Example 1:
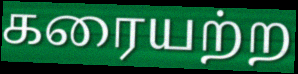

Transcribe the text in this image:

கரையற்ற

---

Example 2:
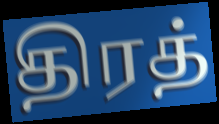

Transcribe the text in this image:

திரத்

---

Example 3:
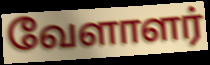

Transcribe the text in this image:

வேளாளர்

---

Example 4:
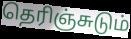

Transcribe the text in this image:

தெரிஞ்சுடும்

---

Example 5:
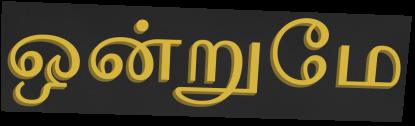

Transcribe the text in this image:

ஒன்றுமே